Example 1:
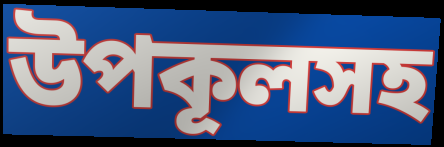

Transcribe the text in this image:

উপকূলসহ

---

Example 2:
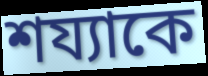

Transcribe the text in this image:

শয্যাকে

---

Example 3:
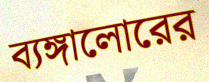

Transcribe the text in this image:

ব্যঙ্গালোরের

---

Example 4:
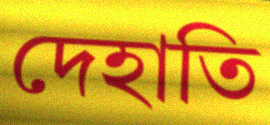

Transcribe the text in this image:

দেহাতি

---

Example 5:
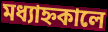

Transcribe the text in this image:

মধ্যাহ্নকালে